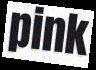
pink